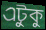
এটুকু